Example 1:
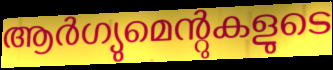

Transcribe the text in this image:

ആർഗ്യുമെന്റുകളുടെ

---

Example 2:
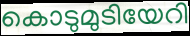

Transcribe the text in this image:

കൊടുമുടിയേറി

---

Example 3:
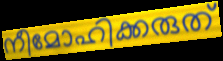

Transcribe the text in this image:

നീമോഹിക്കരുത്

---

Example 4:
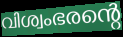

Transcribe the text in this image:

വിശ്വംഭരന്റെ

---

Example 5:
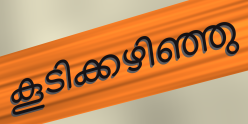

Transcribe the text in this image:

കൂടിക്കഴിഞ്ഞു